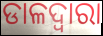
ଡାଳଦ୍ୱାରା